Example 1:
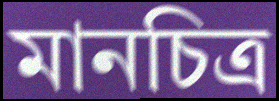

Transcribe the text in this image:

মানচিত্ৰ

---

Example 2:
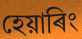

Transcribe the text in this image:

হেয়াৰিং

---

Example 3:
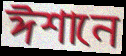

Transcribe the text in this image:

ঈশানে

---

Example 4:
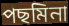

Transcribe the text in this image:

পছমিনা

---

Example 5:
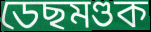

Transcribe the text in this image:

ডেছমণ্ডক